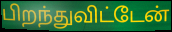
பிறந்துவிட்டேன்